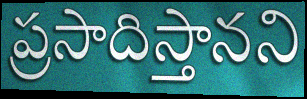
ప్రసాదిస్తానని